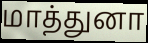
மாத்துனா